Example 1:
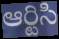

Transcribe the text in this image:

ఆర్టిసి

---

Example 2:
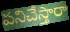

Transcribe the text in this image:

పనిచేస్తారా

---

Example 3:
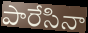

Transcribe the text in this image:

పారేసినా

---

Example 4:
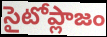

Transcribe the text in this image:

సైటోప్లాజం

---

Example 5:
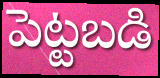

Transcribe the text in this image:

పెట్టబడి